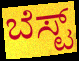
ಬೆಸ್ಟ್